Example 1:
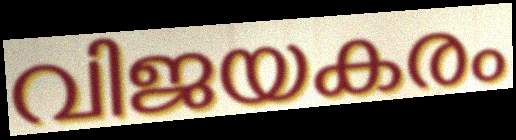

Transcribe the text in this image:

വിജയകരം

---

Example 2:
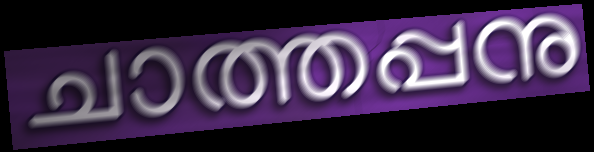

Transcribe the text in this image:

ചാത്തപ്പനു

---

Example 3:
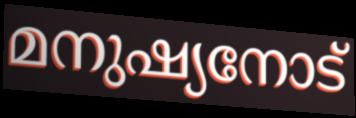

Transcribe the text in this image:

മനുഷ്യനോട്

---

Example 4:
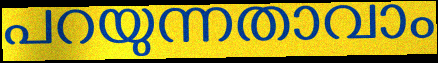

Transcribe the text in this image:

പറയുന്നതാവാം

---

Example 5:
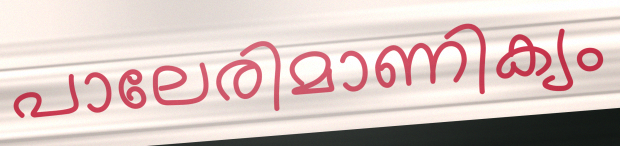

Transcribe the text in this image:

പാലേരിമാണിക്യം